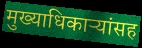
मुख्याधिकाऱ्यांसह